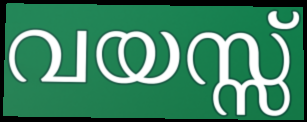
വയസ്സ്